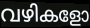
വഴികളോ